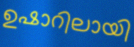
ഉഷാറിലായി